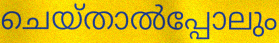
ചെയ്താൽപ്പോലും